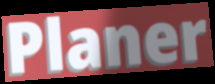
Planer